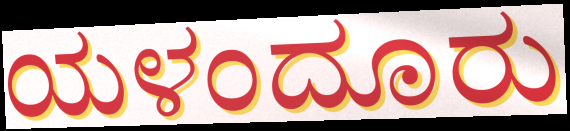
ಯಳಂದೂರು